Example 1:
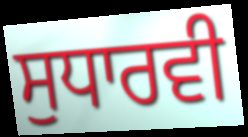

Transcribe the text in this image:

ਸੁਧਾਰਵੀ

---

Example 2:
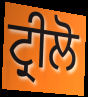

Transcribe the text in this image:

ਟ੍ਰੀਲੋ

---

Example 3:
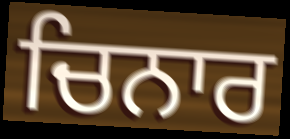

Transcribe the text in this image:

ਚਿਨਾਰ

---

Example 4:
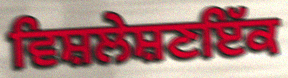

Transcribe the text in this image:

ਵਿਸ਼ਲੇਸ਼ਣਇੱਕ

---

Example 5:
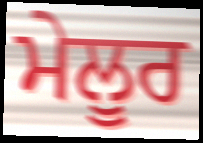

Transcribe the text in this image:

ਮੇਲੂਰ